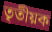
তৃতীয়ক